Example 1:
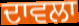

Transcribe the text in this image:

ਦਾਵਲਾ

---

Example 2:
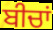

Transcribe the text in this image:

ਬੀਚਾਂ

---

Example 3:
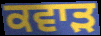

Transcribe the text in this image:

ਕਵਾੜ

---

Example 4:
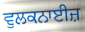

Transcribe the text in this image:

ਵੁਲਕਨਾਈਜ਼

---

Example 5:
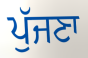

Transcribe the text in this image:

ਪੁੱਜਣਾ